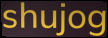
shujog